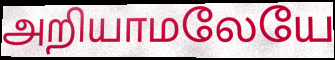
அறியாமலேயே